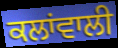
ਕਲਾਂਵਾਲੀ